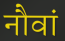
नौवां